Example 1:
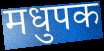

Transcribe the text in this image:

मधुपक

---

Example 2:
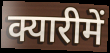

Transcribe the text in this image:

क्यारीमें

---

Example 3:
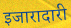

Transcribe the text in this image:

इजारादारी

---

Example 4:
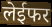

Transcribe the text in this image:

लेईफर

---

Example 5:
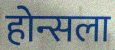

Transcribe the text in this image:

होन्सला